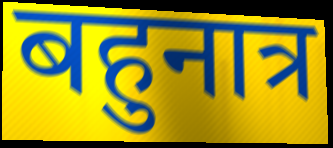
बहुनात्र